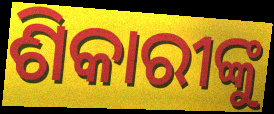
ଶିକାରୀଙ୍କୁ